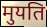
मुयति